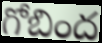
గోబింద